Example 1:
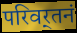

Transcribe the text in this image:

परिवर्तनं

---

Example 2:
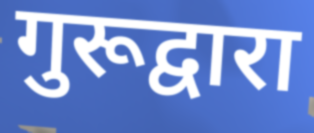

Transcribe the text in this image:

गुरूद्वारा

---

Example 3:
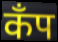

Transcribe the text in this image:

कॅंप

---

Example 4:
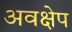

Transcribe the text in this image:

अवक्षेप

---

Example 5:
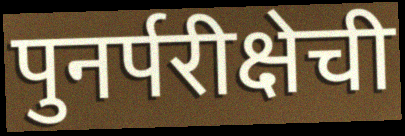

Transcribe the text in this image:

पुनर्परीक्षेची